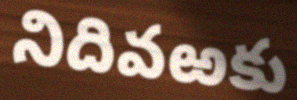
నిదివఱకు